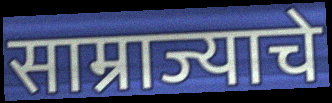
साम्राज्याचे